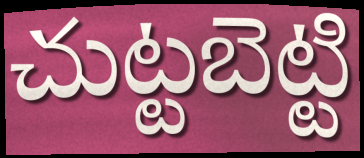
చుట్టబెట్టి